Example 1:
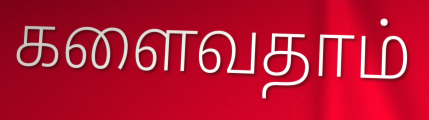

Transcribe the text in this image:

களைவதாம்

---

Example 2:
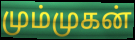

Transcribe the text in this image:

மும்முகன்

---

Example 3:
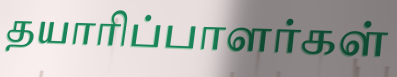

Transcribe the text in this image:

தயாரிப்பாளர்கள்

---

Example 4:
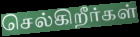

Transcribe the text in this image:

செல்கிறீர்கள்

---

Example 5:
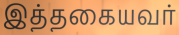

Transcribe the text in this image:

இத்தகையவர்